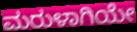
ಮರುಳಾಗಿಯೇ